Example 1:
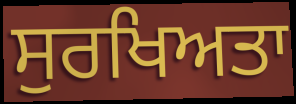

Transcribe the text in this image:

ਸੁਰਖਿਅਤਾ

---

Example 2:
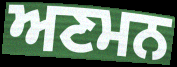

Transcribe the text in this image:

ਅਣਮਨ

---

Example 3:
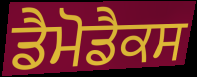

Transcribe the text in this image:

ਡੈਮੋਡੈਕਸ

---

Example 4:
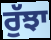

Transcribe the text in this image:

ਰੁੱਝਾ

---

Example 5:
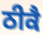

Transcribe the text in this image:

ਠੀਕੈ